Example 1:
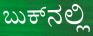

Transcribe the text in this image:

ಬುಕ್‌ನಲ್ಲಿ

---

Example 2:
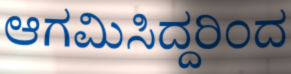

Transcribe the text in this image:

ಆಗಮಿಸಿದ್ದರಿಂದ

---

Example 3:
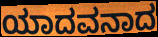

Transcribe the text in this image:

ಯಾದವನಾದ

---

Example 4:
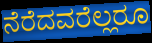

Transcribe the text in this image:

ನೆರೆದವರೆಲ್ಲರೂ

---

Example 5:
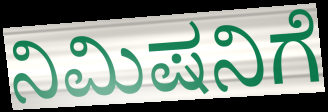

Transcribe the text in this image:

ನಿಮಿಷನಿಗೆ